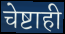
चेष्टाही